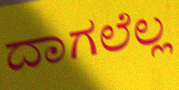
ದಾಗಲೆಲ್ಲ